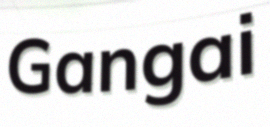
Gangai